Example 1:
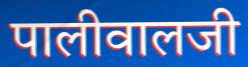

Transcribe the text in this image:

पालीवालजी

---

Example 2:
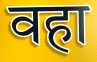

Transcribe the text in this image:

वहा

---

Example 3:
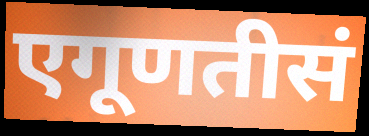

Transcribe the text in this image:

एगूणतीसं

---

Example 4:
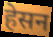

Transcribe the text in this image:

हेसन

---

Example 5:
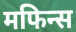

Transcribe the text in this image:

मफिन्स